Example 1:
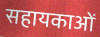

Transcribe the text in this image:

सहायकाओं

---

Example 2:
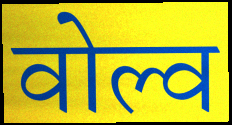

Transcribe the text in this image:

वोल्व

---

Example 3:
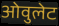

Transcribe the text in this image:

ओवुलेट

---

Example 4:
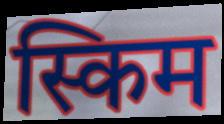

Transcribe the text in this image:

स्किम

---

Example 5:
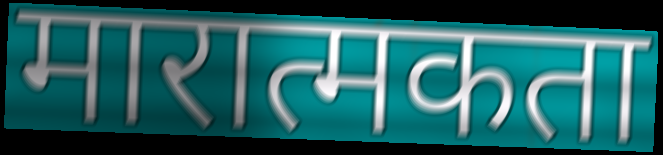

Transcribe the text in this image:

मारात्मकता